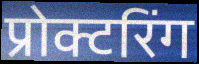
प्रोक्टरिंग